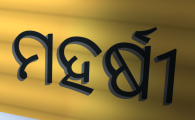
ମହର୍ଷୀ